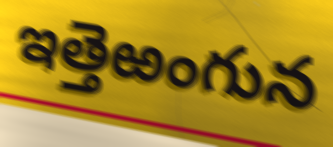
ఇత్తెఱంగున